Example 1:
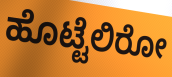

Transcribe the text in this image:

ಹೊಟ್ಟೆಲಿರೋ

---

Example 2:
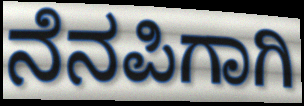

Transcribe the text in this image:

ನೆನಪಿಗಾಗಿ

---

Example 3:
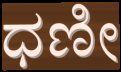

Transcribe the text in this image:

ಧಣೀ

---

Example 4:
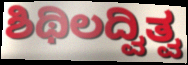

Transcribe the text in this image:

ಶಿಥಿಲದ್ವಿತ್ವ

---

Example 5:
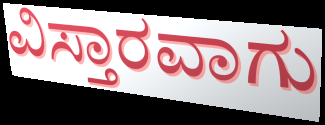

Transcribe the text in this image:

ವಿಸ್ತಾರವಾಗು